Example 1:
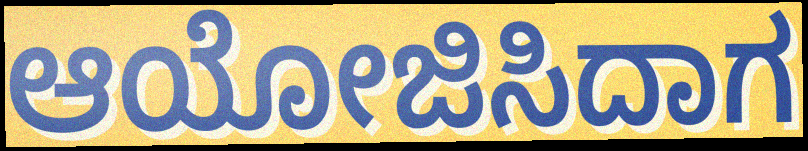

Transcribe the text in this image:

ಆಯೋಜಿಸಿದಾಗ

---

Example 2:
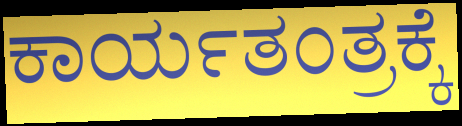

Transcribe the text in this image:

ಕಾರ್ಯತಂತ್ರಕ್ಕೆ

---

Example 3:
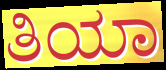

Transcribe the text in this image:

ತಿಯಾ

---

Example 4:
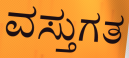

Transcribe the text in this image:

ವಸ್ತುಗತ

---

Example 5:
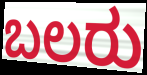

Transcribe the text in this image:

ಬಲರು